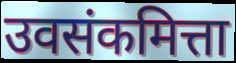
उवसंकमित्ता